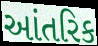
આંતરિક